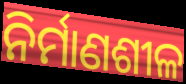
ନିର୍ମାଣଶୀଳ